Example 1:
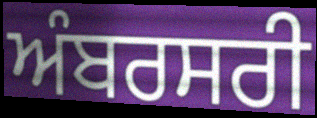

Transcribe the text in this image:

ਅੰਬਰਸਰੀ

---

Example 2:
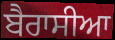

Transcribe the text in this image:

ਬੈਰਾਸੀਆ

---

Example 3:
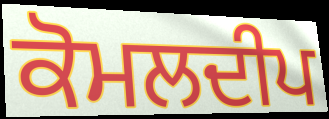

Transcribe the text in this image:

ਕੋਮਲਦੀਪ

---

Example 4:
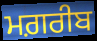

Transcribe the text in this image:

ਮਗ਼ਰੀਬ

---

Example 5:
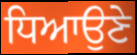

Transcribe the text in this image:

ਧਿਆਉਣੇ